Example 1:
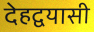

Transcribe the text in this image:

देहद्वयासी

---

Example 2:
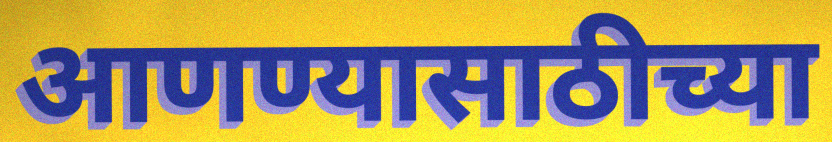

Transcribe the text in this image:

आणण्यासाठीच्या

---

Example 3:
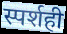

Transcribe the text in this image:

स्पर्शही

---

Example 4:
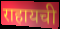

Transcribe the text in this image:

राहायची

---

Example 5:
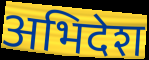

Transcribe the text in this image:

अभिदेश